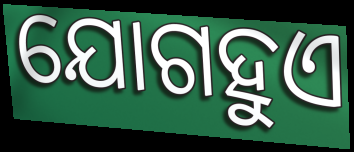
ଯୋଗହୁଏ